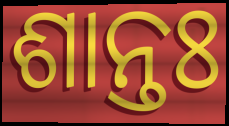
ଶାନ୍ତଃ